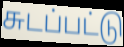
சுடப்பட்டு